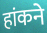
हांकने